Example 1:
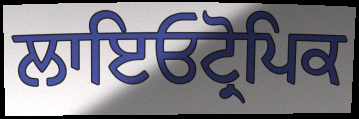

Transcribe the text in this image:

ਲਾਇਓਟ੍ਰੋਪਿਕ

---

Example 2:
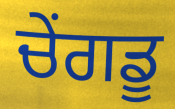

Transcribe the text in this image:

ਚੇਂਗਡੂ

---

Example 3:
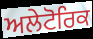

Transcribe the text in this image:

ਅਲੇਟੋਰਿਕ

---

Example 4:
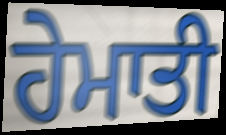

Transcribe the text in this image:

ਹੇਮਾਤੀ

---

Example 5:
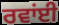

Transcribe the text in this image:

ਰਵਾਂਈ